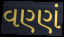
વણ્ણં